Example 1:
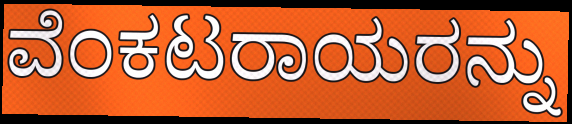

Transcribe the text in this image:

ವೆಂಕಟರಾಯರನ್ನು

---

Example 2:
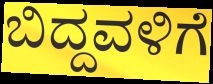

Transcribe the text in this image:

ಬಿದ್ದವಳಿಗೆ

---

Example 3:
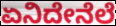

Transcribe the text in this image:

ಏನಿದೇನೆಲೆ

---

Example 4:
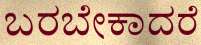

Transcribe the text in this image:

ಬರಬೇಕಾದರೆ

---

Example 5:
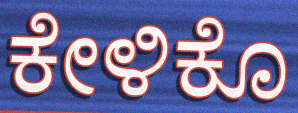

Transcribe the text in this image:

ಕೇಳಿಕೊ